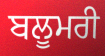
ਬਲੂਮਰੀ